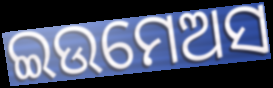
ଇଉମେଅସ